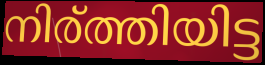
നിര്ത്തിയിട്ട